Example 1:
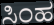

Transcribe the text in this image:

ಸಿಂಹ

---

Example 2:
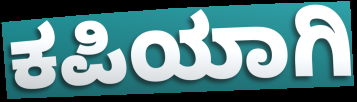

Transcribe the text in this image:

ಕಪಿಯಾಗಿ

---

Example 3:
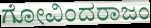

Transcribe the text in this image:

ಗೋವಿಂದರಾಜಂ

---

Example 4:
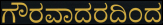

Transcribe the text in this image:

ಗೌರವಾದರದಿಂದ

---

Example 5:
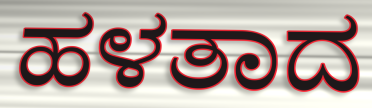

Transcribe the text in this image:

ಹಳತಾದ